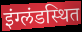
इंग्लंडस्थित